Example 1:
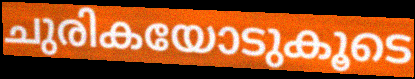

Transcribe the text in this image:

ചുരികയോടുകൂടെ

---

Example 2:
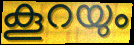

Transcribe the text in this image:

കൂറയും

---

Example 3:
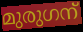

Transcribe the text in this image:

മുരുഗന്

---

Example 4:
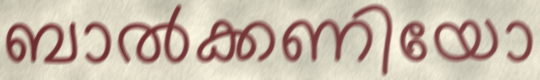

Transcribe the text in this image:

ബാൽക്കണിയോ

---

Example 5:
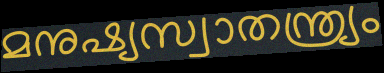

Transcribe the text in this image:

മനുഷ്യസ്വാതന്ത്ര്യം